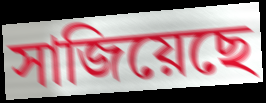
সাজিয়েছে